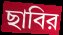
ছাবির